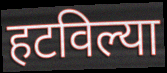
हटविल्या